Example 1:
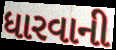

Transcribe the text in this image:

ધારવાની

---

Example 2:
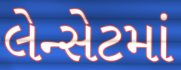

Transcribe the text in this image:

લેન્સેટમાં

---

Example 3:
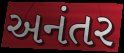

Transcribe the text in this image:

અનંતર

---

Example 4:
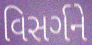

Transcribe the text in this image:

વિસર્ગને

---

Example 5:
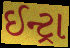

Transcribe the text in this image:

ઈન્ટ્રા